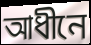
আধীনে